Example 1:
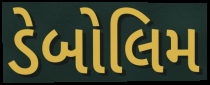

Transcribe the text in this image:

ડેબોલિમ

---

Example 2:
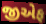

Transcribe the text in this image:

જીએફ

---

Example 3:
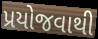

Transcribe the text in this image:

પ્રયોજવાથી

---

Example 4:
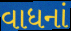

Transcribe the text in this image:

વાધનાં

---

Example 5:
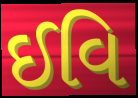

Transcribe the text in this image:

ઈવિ